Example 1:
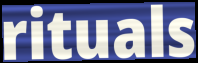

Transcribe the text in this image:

rituals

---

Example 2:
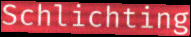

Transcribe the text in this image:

Schlichting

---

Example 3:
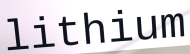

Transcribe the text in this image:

lithium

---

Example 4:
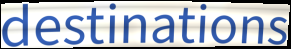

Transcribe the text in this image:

destinations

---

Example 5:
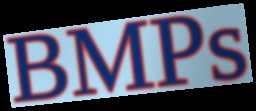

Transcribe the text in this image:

BMPs